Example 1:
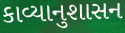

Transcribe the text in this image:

કાવ્યાનુશાસન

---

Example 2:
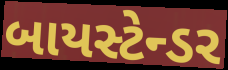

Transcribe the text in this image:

બાયસ્ટેન્ડર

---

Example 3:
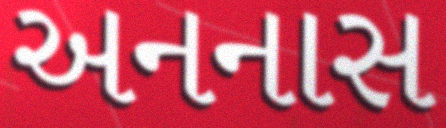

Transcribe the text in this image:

અનનાસ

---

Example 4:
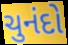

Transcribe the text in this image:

ચુનંદો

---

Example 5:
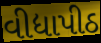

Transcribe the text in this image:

વીદ્યાપીઠ